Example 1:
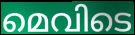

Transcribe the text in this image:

മെവിടെ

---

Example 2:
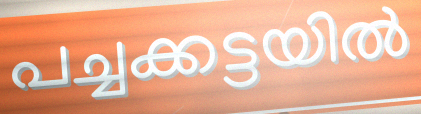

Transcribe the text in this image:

പച്ചക്കട്ടയിൽ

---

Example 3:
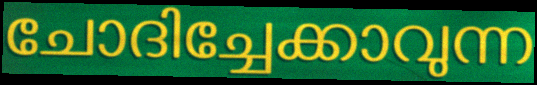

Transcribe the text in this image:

ചോദിച്ചേക്കാവുന്ന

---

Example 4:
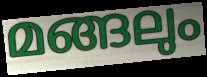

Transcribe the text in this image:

മങ്ങലും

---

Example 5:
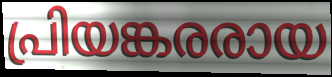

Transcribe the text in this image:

പ്രിയങ്കരരായ